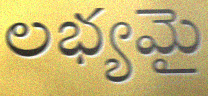
లభ్యమై